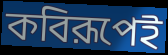
কবিরূপেই